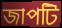
জাপটি